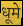
धूमे